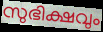
സുഭിക്ഷവും